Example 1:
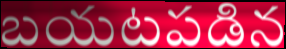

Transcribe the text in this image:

బయటపడిన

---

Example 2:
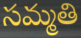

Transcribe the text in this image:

సమ్మతి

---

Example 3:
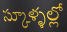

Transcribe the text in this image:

స్కూళ్ళల్లో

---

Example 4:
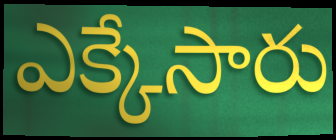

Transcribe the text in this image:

ఎక్కేసారు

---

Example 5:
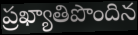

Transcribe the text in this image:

ప్రఖ్యాతిపొందిన